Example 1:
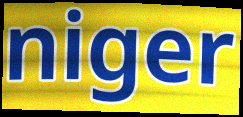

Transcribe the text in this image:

niger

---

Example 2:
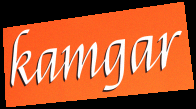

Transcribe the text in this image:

kamgar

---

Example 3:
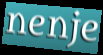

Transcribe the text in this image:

nenje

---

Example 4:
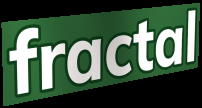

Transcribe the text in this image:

fractal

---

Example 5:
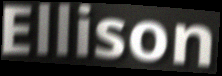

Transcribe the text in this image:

Ellison